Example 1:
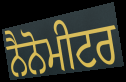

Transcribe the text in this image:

ਨੈਨੋਮੀਟਰ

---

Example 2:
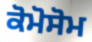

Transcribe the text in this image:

ਕੋਮੋਸੋਮ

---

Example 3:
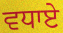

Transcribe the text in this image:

ਵਧਾਏ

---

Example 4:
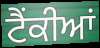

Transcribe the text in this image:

ਟੈਂਕੀਆਂ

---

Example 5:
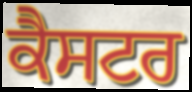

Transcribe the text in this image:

ਕੈਸਟਰ